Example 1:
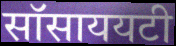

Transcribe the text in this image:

सॉसाययटी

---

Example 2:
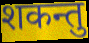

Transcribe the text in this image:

शकन्तु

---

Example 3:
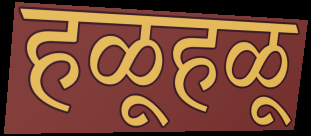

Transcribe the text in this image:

हळूहळू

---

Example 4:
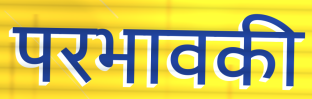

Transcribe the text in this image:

परभावकी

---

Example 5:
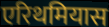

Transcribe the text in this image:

एरिथमियास